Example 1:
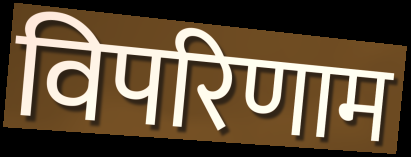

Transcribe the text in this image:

विपरिणाम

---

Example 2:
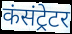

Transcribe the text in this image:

कंसंट्रेटर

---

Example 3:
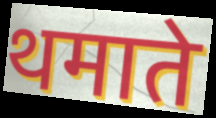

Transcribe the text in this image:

थमाते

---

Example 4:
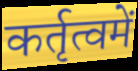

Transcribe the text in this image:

कर्तृत्वमें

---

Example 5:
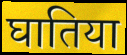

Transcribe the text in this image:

घातिया